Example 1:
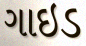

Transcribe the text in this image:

ગાઇડ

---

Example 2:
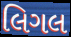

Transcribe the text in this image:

લિગલ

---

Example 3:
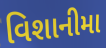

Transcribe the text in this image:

વિશાનીમા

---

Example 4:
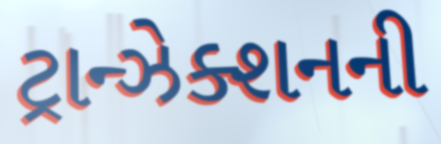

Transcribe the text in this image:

ટ્રાન્ઝેક્શનની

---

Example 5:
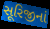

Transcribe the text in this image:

સૂરિજીનાં